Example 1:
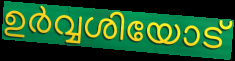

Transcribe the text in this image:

ഉർവ്വശിയോട്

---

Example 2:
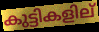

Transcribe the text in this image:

കുട്ടികളില്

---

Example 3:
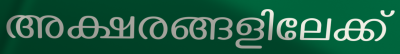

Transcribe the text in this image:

അക്ഷരങ്ങളിലേക്ക്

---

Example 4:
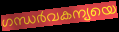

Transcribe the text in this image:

ഗന്ധർവകന്യയെ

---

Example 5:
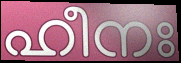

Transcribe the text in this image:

ഹീനഃ